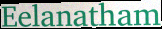
Eelanatham